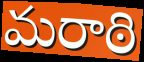
మరాఠి